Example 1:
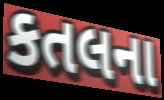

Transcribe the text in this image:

કતલના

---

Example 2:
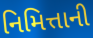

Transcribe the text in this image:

નિમિત્તાની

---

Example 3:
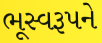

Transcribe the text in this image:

ભૂસ્વરૂપને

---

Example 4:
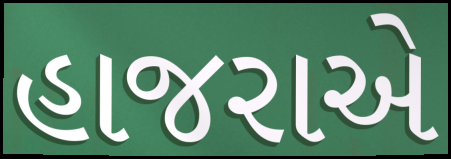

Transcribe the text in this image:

હાજરાએ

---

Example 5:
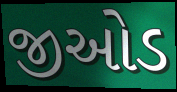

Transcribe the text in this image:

જીઓડ